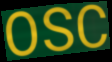
OSC